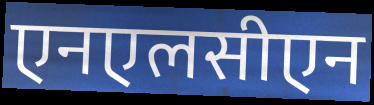
एनएलसीएन